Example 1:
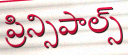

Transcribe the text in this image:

ప్రిన్సిపాల్స్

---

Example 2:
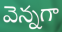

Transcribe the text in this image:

వెన్నగా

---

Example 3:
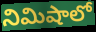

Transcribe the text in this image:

నిమిషాలో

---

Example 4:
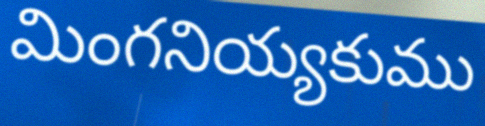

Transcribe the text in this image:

మింగనియ్యకుము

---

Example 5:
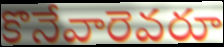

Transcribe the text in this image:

కొనేవారెవరూ